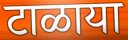
टाळाया